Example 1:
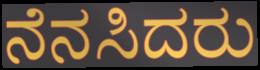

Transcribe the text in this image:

ನೆನಸಿದರು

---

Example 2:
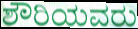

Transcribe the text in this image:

ಶೌರಿಯವರು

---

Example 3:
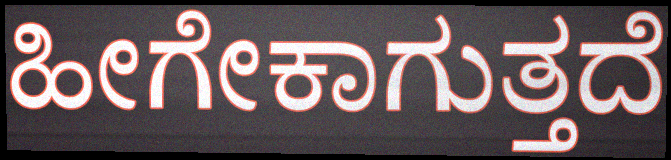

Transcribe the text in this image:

ಹೀಗೇಕಾಗುತ್ತದೆ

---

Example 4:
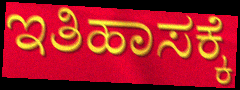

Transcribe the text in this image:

ಇತಿಹಾಸಕ್ಕೆ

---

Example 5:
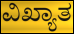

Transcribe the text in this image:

ವಿಖ್ಯಾತ